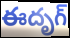
ఈదృగ్